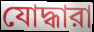
যোদ্ধারা